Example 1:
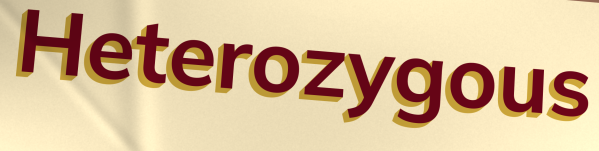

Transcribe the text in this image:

Heterozygous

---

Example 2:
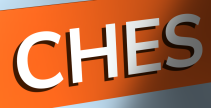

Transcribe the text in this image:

CHES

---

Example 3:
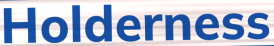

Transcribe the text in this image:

Holderness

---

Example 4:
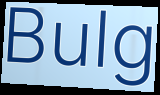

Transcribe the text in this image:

Bulg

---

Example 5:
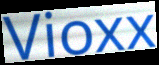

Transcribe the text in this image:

Vioxx